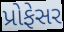
પ્રોફેસર